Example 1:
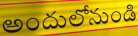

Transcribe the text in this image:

అందులోనుండి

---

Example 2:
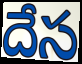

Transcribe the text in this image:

దేస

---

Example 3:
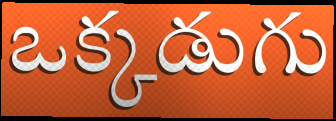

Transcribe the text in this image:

ఒక్కడుగు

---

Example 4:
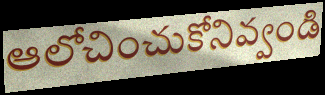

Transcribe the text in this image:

ఆలోచించుకోనివ్వండి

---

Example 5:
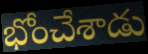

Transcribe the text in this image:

భోంచేశాడు